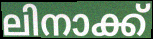
ലിനാക്ക്